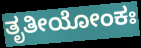
ತೃತೀಯೋಂಕಃ